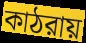
কাঠরায়